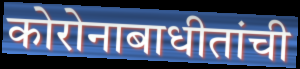
कोरोनाबाधीतांची